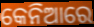
କେନିଆରେ